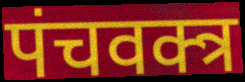
पंचवक्त्र